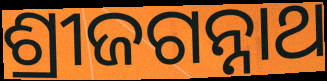
ଶ୍ରୀଜଗନ୍ନାଥ